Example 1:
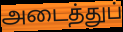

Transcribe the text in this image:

அடைத்துப்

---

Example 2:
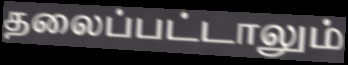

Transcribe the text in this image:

தலைப்பட்டாலும்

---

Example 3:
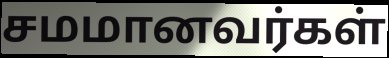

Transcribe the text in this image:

சமமானவர்கள்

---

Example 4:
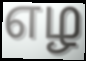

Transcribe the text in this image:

எழ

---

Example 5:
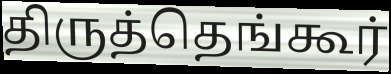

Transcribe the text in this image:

திருத்தெங்கூர்